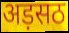
अड़सठ